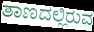
ತಾಣದಲ್ಲಿರುವ